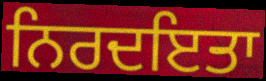
ਨਿਰਦਇਤਾ